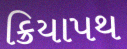
ક્રિયાપથ